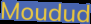
Moudud